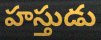
హస్తుడు